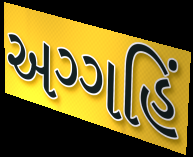
અગ્ગહિં